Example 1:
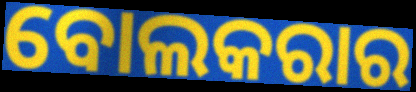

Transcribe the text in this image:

ବୋଲକରାର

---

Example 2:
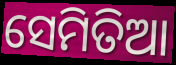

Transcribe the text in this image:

ସେମିତିଆ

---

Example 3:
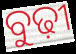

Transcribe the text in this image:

ବୁଢ଼ୀ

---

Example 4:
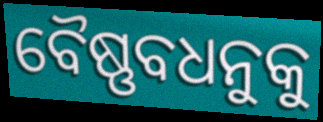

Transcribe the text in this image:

ବୈଷ୍ଣବଧନୁକୁ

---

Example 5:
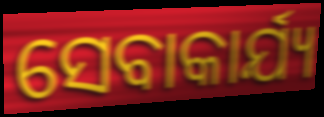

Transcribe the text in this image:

ସେବାକାର୍ଯ୍ୟ